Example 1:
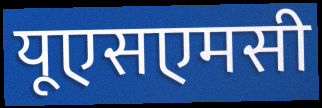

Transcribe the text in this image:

यूएसएमसी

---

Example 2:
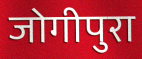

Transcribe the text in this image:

जोगीपुरा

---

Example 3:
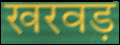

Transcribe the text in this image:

खरवड़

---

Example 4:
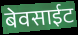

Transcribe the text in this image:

बेवसाईट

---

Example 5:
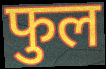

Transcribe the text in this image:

फुल